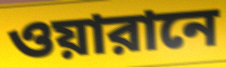
ওয়ারানে